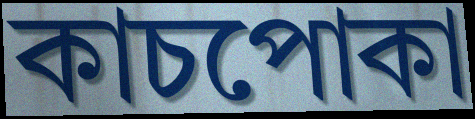
কাচপোকা